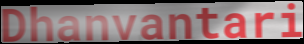
Dhanvantari